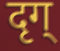
दृग्